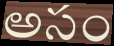
అసం